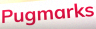
Pugmarks